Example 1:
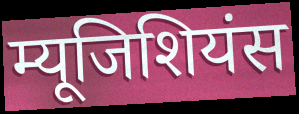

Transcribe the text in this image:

म्यूजिशियंस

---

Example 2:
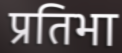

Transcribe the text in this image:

प्रतिभा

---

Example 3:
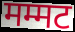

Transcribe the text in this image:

मम्मट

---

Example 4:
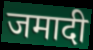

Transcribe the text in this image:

जमादी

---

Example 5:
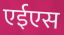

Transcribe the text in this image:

एईएस